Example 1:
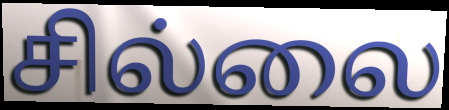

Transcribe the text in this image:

சில்லை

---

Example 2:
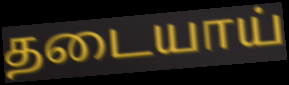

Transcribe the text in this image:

தடையாய்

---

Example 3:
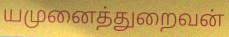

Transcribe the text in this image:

யமுனைத்துறைவன்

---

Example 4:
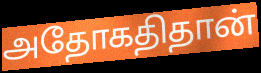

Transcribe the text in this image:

அதோகதிதான்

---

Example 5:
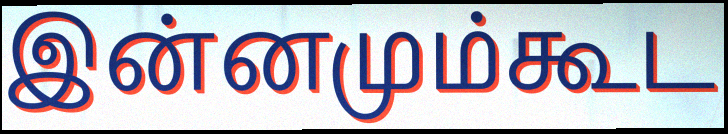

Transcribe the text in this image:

இன்னமும்கூட